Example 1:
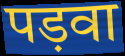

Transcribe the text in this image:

पड़वा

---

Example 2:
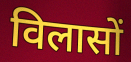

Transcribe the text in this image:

विलासों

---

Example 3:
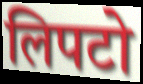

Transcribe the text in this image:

लिपटो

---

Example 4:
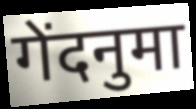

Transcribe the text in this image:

गेंदनुमा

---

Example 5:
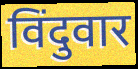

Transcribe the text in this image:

विंदुवार